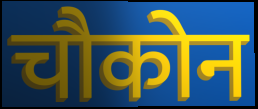
चौकोन